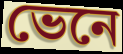
ভেনে